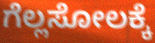
ಗೆಲ್ಲಸೋಲಕ್ಕೆ